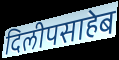
दिलीपसाहेब